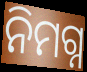
ନିମଗ୍ନ